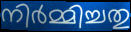
നിർമ്മിച്ചതു